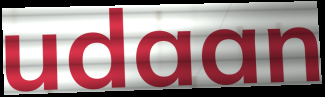
udaan